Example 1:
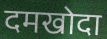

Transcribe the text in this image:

दमखोदा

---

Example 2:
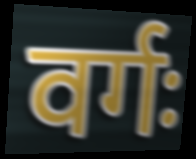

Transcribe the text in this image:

वर्गः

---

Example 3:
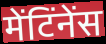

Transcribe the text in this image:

मेंटिंनेंस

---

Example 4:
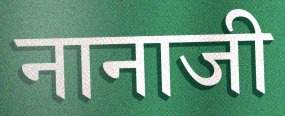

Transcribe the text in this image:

नानाजी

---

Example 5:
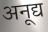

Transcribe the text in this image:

अनूद्य